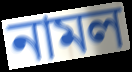
নামল